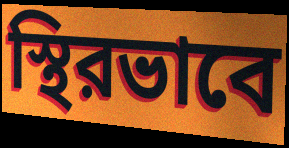
স্থিরভাবে